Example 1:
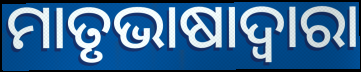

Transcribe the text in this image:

ମାତୃଭାଷାଦ୍ୱାରା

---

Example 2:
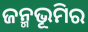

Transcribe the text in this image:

ଜନ୍ମଭୂମିର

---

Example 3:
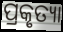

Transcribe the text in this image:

ପ୍ରକୃତ୍ୟା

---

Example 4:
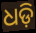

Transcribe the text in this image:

ଧଡ଼ି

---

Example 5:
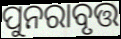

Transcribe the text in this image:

ପୁନରାବୃତ୍ତ